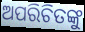
ଅପରିଚିତଙ୍କୁ